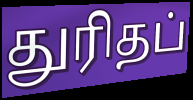
துரிதப்